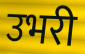
उभरी